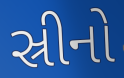
સ્રીનો